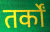
तर्कों